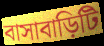
বাসাবাড়িটি